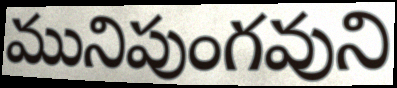
మునిపుంగవుని